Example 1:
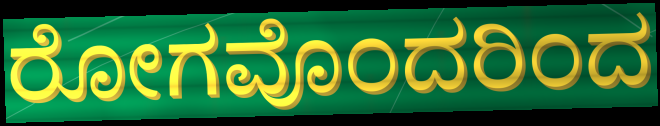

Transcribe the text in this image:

ರೋಗವೊಂದರಿಂದ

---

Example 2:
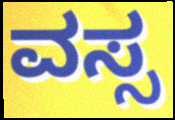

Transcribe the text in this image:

ವಸ್ಸ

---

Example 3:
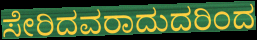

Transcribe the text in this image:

ಸೇರಿದವರಾದುದರಿಂದ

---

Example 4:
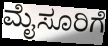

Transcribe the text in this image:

ಮೈಸೂರಿಗೆ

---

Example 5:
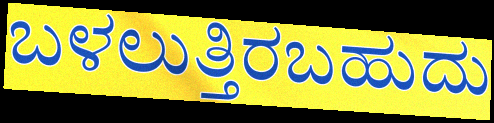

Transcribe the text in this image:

ಬಳಲುತ್ತಿರಬಹುದು